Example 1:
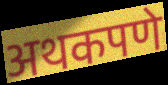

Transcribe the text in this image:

अथकपणे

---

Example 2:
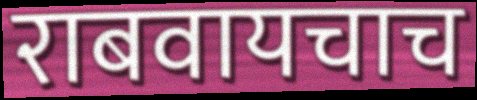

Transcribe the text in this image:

राबवायचाच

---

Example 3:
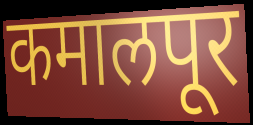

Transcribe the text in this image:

कमालपूर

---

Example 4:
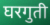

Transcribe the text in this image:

घरगुती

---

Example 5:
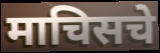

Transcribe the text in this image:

माचिसचे